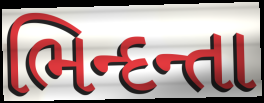
ભિન્દન્તા